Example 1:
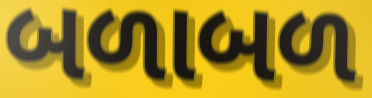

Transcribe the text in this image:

બળાબળ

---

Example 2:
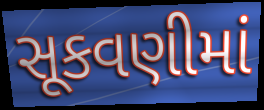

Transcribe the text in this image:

સૂકવણીમાં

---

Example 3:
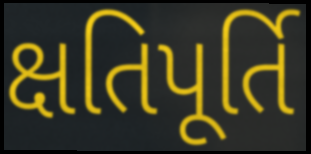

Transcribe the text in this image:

ક્ષતિપૂર્તિ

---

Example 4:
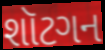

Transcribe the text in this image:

શૉટગન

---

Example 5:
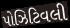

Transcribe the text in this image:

પોઝિટિવલી